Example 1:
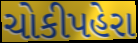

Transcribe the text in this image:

ચોકીપહેરા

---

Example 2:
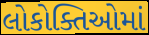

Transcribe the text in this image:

લોકોક્તિઓમાં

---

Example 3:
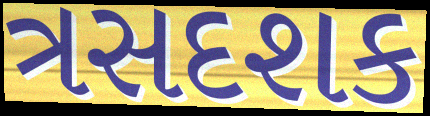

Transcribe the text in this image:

ત્રસદશક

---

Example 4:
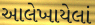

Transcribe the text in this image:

આલેખાયેલાં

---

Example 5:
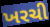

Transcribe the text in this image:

ખરચી